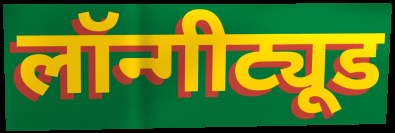
लॉन्गीट्यूड